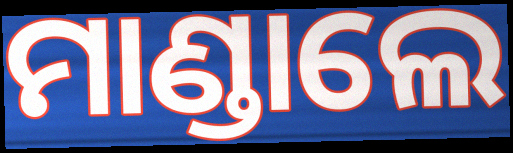
ମାଣ୍ଡାଲେ